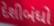
દેશીબંધો